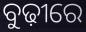
ବୁଢ଼ୀରେ